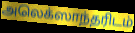
அலெக்ஸாந்தரிடம்